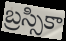
బ్రస్సికా